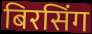
बिरसिंग